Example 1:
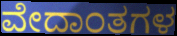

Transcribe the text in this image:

ವೇದಾಂತಗಳ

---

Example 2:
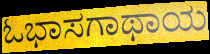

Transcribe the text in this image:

ಓಭಾಸಗಾಥಾಯ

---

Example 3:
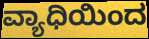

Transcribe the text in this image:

ವ್ಯಾಧಿಯಿಂದ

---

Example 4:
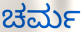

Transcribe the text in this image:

ಚರ್ಮ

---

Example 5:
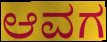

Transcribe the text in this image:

ಆವಗ